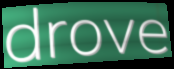
drove